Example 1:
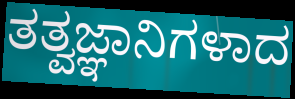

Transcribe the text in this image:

ತತ್ವಜ್ಞಾನಿಗಳಾದ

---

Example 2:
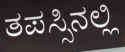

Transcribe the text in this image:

ತಪಸ್ಸಿನಲ್ಲಿ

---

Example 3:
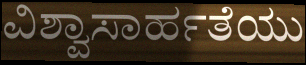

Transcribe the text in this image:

ವಿಶ್ವಾಸಾರ್ಹತೆಯು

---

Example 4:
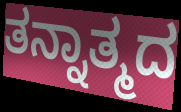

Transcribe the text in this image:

ತನ್ನಾತ್ಮದ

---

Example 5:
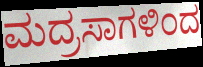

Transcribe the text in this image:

ಮದ್ರಸಾಗಳಿಂದ